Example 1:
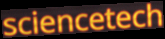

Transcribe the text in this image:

sciencetech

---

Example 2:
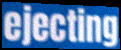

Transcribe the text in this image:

ejecting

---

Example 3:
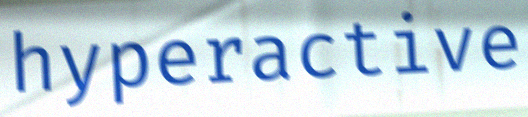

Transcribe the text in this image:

hyperactive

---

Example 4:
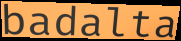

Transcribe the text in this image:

badalta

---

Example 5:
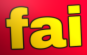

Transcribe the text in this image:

fai